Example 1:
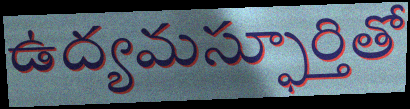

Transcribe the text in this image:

ఉద్యమస్ఫూర్తితో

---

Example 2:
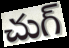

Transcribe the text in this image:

చుగ్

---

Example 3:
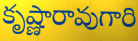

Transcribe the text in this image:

కృష్ణారావుగారి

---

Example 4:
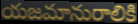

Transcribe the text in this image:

యజమానురాలికి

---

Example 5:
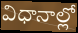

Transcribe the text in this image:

విధానాల్లో